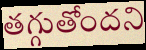
తగ్గుతోందని